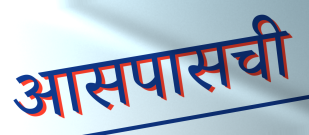
आसपासची